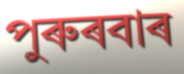
পুৰুৰবাৰ